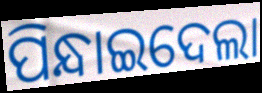
ପିନ୍ଧାଇଦେଲା